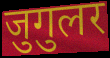
जुगुलर